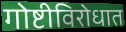
गोष्टीविरोधात